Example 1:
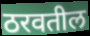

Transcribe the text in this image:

ठरवतील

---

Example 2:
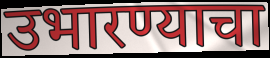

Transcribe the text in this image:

उभारण्याचा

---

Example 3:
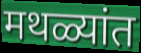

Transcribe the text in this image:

मथळ्यांत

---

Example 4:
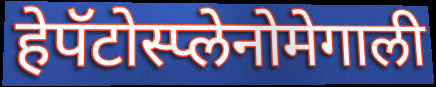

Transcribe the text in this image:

हेपॅटोस्प्लेनोमेगाली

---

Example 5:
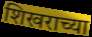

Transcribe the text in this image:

शिखराच्या